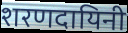
शरणदायिनी